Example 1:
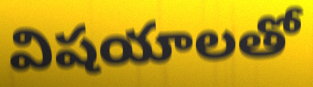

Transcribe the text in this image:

విషయాలతో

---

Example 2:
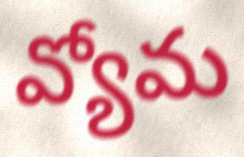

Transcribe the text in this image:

వ్యోమ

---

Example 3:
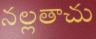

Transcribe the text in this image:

నల్లతాచు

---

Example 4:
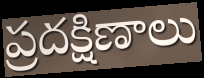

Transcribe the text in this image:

ప్రదక్షిణాలు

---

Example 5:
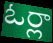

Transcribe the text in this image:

ఓర్లా